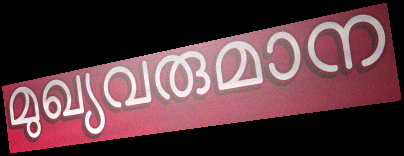
മുഖ്യവരുമാന